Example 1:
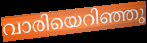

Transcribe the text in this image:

വാരിയെറിഞ്ഞു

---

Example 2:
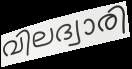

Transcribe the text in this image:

വിലദ്വാരി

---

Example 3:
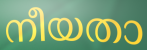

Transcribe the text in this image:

നീയതാ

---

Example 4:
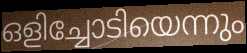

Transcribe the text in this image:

ഒളിച്ചോടിയെന്നും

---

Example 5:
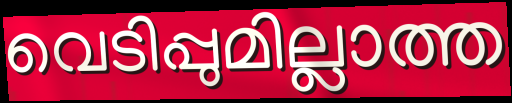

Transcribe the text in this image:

വെടിപ്പുമില്ലാത്ത